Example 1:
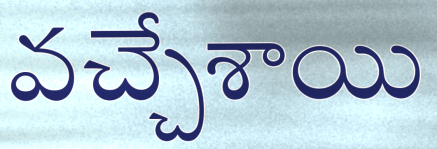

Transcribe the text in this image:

వచ్చేశాయి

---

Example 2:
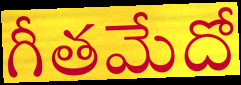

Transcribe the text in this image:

గీతమేదో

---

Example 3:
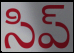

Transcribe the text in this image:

సిప్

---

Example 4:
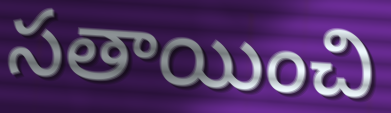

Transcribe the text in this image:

సతాయించి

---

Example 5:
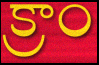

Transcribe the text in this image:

క్రాం